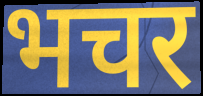
भचर